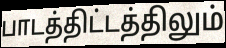
பாடத்திட்டத்திலும்